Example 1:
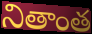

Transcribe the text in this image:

నితాంత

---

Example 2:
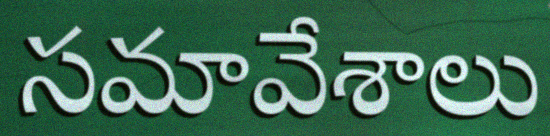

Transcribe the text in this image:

సమావేశాలు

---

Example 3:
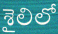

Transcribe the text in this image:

శైలిలో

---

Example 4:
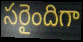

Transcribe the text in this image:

సరైందిగా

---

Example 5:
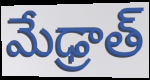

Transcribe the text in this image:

మేఢ్రాత్